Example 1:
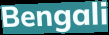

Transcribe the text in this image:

Bengali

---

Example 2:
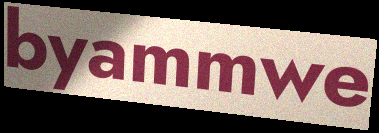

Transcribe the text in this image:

byammwe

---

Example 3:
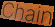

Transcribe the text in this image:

Chain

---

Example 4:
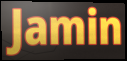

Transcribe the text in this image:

Jamin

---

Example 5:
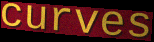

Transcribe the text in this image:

curves